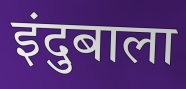
इंदुबाला